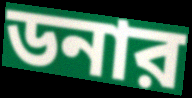
ডনার